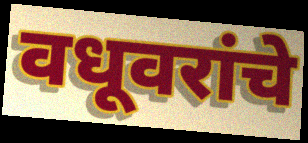
वधूवरांचे